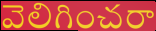
వెలిగించరా